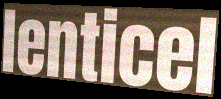
lenticel